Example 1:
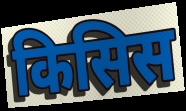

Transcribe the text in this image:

किसिस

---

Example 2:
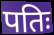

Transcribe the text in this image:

पतिः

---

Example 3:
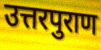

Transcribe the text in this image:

उत्तरपुराण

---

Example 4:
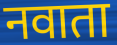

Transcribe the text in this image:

नवाता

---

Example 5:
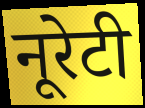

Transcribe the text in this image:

नूरेटी